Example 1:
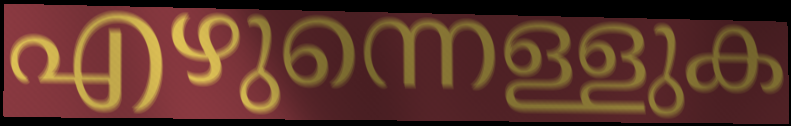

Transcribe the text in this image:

എഴുന്നെള്ളുക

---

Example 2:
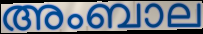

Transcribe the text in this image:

അംബാല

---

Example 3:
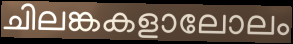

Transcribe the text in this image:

ചിലങ്കകളാലോലം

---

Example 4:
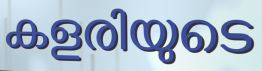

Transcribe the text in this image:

കളരിയുടെ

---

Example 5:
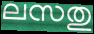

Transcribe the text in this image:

ലസതു